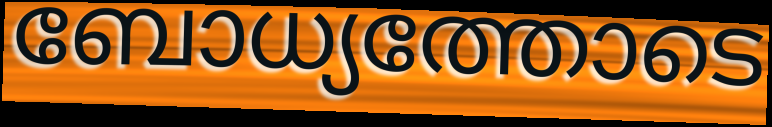
ബോധ്യത്തോടെ